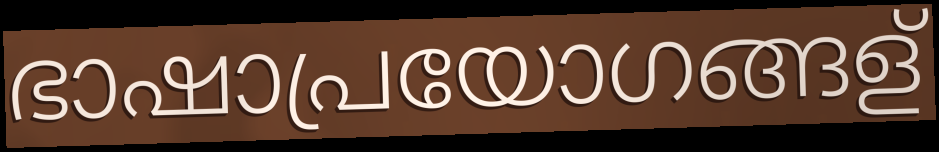
ഭാഷാപ്രയോഗങ്ങള്